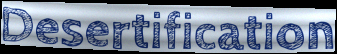
Desertification